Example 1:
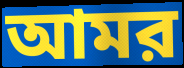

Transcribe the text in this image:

আমর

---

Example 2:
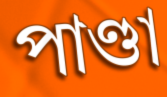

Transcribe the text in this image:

পাণ্ডা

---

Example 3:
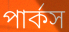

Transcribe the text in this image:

পার্কস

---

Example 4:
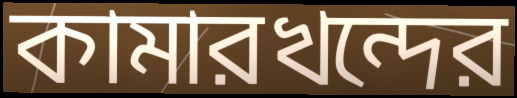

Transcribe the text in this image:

কামারখন্দের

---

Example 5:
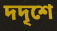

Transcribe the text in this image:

দদৃশে